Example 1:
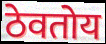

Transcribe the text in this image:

ठेवतोय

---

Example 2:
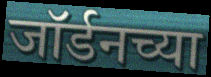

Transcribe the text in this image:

जॉर्डनच्या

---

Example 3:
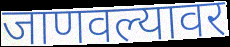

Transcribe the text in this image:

जाणवल्यावर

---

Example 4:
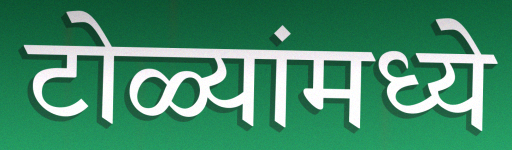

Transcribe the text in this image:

टोळ्यांमध्ये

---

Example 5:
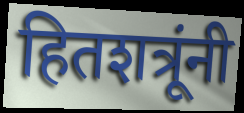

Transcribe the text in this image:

हितशत्रूंनी